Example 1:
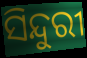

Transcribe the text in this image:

ସିନ୍ଦୁରୀ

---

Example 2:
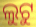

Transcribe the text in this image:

ଲୁଟୁ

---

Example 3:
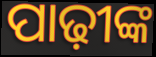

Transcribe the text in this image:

ପାଢ଼ୀଙ୍କ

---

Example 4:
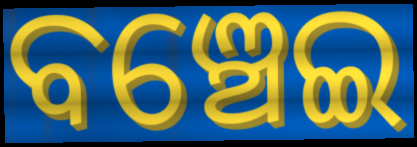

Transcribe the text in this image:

ବଞ୍ଚେଇ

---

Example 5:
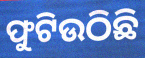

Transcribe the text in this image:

ଫୁଟିଉଠିଛି